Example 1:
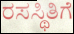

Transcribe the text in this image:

ರಸಸ್ಥಿತಿಗೆ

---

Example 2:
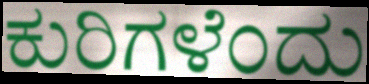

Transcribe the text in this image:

ಕುರಿಗಳೆಂದು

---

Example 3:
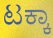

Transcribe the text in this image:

ಟಕ್ಕಾ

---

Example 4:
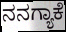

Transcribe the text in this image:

ನನಗ್ಯಾಕೆ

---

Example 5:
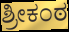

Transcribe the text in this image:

ಶ್ರೀಕಂಠ